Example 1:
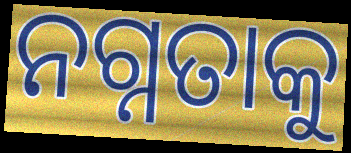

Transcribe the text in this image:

ନଗ୍ନତାକୁ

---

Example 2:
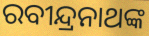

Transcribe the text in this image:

ରବୀନ୍ଦ୍ରନାଥଙ୍କ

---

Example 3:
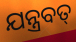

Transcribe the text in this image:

ଯନ୍ତ୍ରବତ୍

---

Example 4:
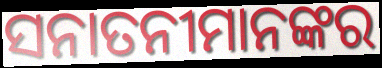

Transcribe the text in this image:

ସନାତନୀମାନଙ୍କର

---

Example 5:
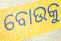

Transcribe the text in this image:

ବୋଉକୁ